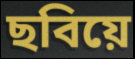
ছবিয়ে